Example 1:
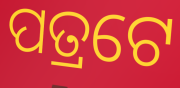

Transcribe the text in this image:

ପତ୍ରଟେ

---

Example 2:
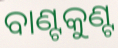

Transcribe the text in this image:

ବାଣ୍ଟକୁଣ୍ଟ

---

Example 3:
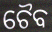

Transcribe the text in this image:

ଚୈବ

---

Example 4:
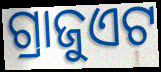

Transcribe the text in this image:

ଗ୍ରାଜୁଏଟ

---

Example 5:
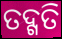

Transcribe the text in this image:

ତଦ୍ଗତି